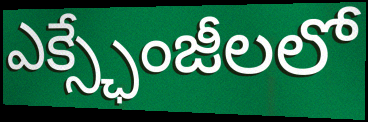
ఎక్స్ఛేంజీలలో